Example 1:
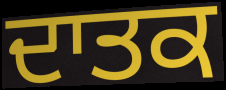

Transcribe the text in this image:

ਦਾਤਕ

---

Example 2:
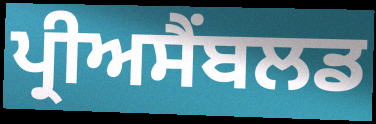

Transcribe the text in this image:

ਪ੍ਰੀਅਸੈਂਬਲਡ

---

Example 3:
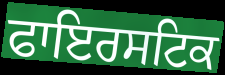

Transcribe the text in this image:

ਫਾਇਰਸਟਿਕ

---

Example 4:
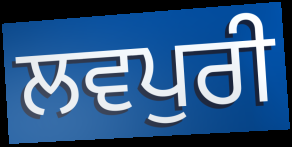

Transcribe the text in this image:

ਲਵਪੁਰੀ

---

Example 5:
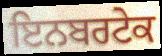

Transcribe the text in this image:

ਇਨਬਰਟੇਕ